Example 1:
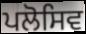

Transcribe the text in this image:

ਪਲੋਸਿਵ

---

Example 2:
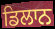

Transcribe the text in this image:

ਡਿਲਾਨ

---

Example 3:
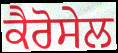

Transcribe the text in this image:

ਕੈਰੋਸੇਲ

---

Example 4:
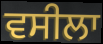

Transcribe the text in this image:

ਵਸੀਲਾ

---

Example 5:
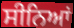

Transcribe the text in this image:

ਸੀਨਿਆਂ